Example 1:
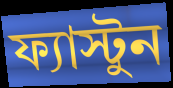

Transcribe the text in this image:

ফ্যাস্টুন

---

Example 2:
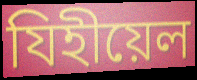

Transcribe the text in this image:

যিহীয়েল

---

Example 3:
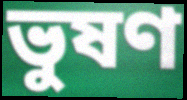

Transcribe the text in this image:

ভুষণ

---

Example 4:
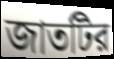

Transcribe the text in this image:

জাতটির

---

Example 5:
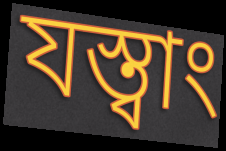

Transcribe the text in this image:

যস্ত্বাং